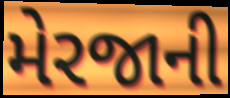
મેરજાની